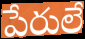
పేరులే